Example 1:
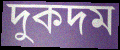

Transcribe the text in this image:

দুকদম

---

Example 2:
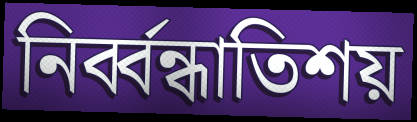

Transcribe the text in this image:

নির্ব্বন্ধাতিশয়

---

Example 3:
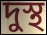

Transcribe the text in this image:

দুস্থ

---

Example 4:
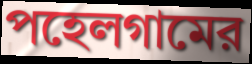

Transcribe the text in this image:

পহেলগামের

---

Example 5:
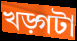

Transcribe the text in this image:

খড়্গটা